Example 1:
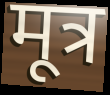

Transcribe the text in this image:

मूत्र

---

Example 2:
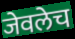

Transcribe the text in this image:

जेवलेच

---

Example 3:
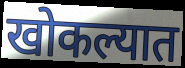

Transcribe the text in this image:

खोकल्यात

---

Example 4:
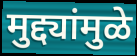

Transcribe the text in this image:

मुद्द्यांमुळे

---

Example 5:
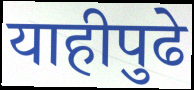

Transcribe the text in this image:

याहीपुढे